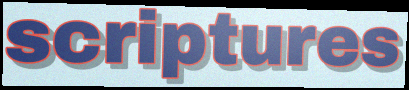
scriptures